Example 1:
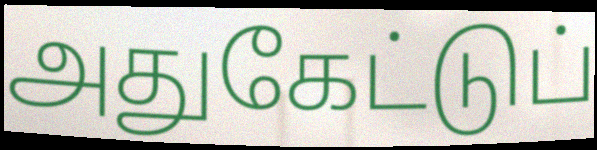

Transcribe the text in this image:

அதுகேட்டுப்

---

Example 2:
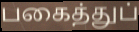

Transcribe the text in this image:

பகைத்துப்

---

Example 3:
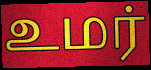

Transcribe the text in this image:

உமர்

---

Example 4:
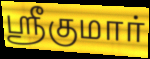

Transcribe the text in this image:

ஸ்ரீகுமார்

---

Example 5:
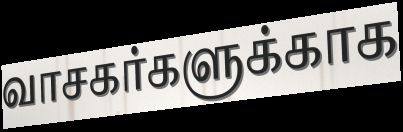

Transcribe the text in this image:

வாசகர்களுக்காக